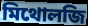
মিথোলজি